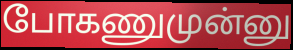
போகணுமுன்னு